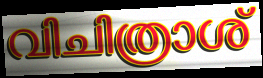
വിചിത്രാശ്